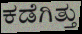
ಕಡೆಗಿತ್ತು